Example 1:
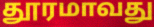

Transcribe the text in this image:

தூரமாவது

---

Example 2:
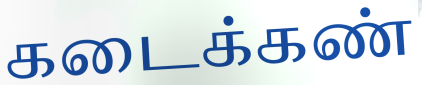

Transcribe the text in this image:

கடைக்கண்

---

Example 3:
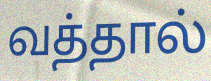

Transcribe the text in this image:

வத்தால்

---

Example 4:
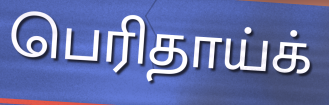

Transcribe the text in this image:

பெரிதாய்க்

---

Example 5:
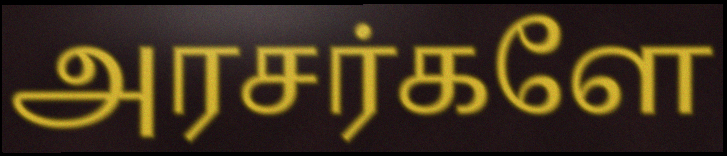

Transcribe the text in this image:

அரசர்களே